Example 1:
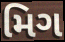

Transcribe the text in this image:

મિગ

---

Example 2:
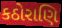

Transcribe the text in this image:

કઠોરાણિ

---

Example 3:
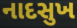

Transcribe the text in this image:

નાદસુખ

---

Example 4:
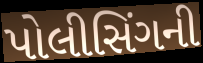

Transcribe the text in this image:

પોલીસિંગની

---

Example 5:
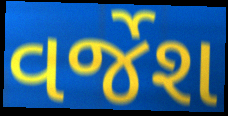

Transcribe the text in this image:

વર્જેશ